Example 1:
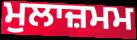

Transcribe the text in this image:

ਮੁਲਾਜ਼ਮਮ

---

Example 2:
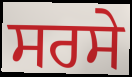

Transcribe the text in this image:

ਸਰਸੇ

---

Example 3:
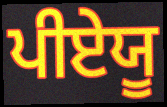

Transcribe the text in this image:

ਪੀਏਯੂ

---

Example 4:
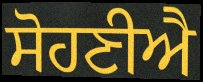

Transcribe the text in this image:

ਸੋਹਣੀਐ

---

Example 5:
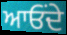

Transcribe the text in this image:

ਆਓਂਦੇ